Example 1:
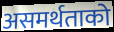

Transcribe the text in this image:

असमर्थताको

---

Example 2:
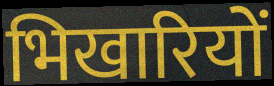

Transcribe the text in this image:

भिखारियों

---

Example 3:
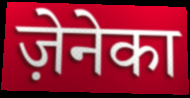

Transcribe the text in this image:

ज़ेनेका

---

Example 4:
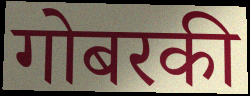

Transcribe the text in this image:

गोबरकी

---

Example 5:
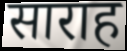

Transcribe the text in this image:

साराह